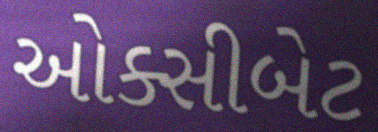
ઓક્સીબેટ